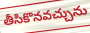
తీసికొనవచ్చును